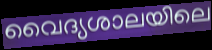
വൈദ്യശാലയിലെ